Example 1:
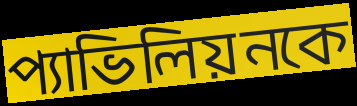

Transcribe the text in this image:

প্যাভিলিয়নকে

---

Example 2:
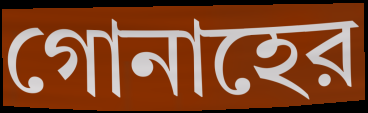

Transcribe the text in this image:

গোনাহের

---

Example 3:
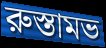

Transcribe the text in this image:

রুস্তামভ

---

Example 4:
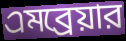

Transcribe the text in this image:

এমব্রেয়ার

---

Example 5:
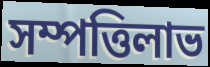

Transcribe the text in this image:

সম্পত্তিলাভ